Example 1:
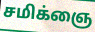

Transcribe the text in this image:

சமிக்ஞை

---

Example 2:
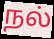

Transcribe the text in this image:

நல்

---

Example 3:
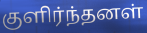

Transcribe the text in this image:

குளிர்ந்தனள்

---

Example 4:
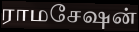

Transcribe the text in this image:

ராமசேஷன்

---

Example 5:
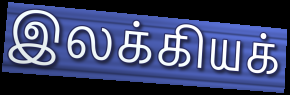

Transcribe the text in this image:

இலக்கியக்